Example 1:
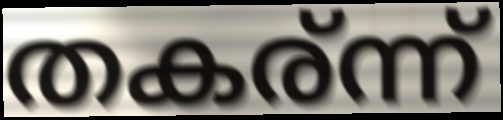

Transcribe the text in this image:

തകര്ന്ന്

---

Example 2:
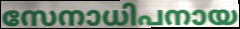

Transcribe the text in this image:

സേനാധിപനായ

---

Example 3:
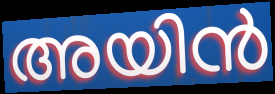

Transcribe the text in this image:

അയിൻ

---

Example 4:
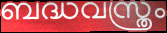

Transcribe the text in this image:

ബദ്ധവസ്ത്രം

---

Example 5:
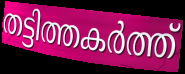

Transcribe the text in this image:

തട്ടിത്തകർത്ത്